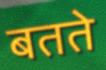
बतते